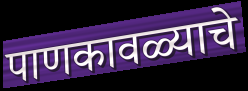
पाणकावळ्याचे